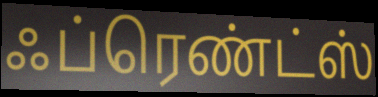
ஃப்ரெண்ட்ஸ்